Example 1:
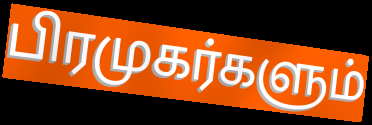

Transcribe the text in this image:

பிரமுகர்களும்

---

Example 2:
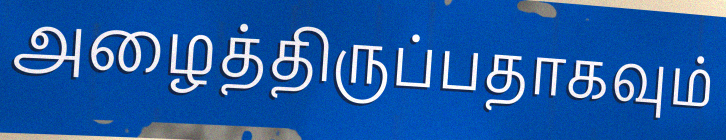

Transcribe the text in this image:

அழைத்திருப்பதாகவும்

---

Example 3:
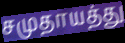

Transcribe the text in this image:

சமுதாயத்து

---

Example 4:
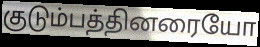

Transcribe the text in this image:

குடும்பத்தினரையோ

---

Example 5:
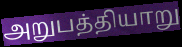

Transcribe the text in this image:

அறுபத்தியாறு